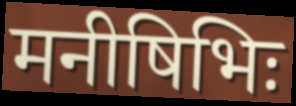
मनीषिभिः